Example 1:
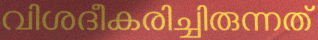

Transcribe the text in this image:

വിശദീകരിച്ചിരുന്നത്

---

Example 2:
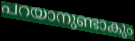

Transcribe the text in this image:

പറയാനുണ്ടാകും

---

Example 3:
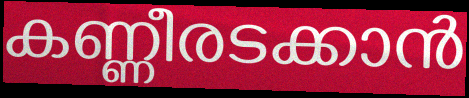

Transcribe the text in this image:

കണ്ണീരടക്കാൻ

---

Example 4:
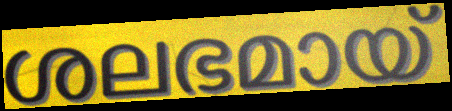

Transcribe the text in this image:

ശലഭമായ്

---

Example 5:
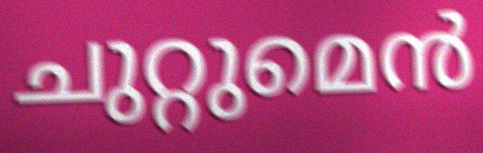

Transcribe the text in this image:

ചുറ്റുമെൻ